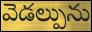
వెడల్పును